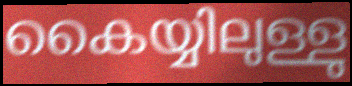
കൈയ്യിലുള്ളു